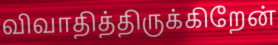
விவாதித்திருக்கிறேன்